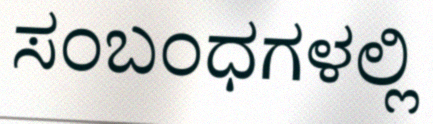
ಸಂಬಂಧಗಳಲ್ಲಿ